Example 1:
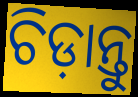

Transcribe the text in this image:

ଚିଡ଼ାନ୍ତୁ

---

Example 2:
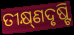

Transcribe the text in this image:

ତୀକ୍ଷ୍‌ଣଦୃଷ୍ଟି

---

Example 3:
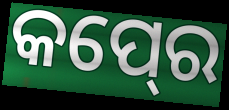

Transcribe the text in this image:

କପ୍‍ରେ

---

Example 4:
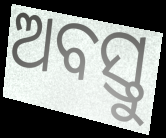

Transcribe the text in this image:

ଅବସ୍ତୁ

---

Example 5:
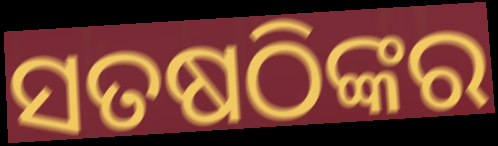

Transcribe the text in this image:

ସତଷଠିଙ୍କର